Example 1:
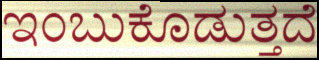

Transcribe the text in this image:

ಇಂಬುಕೊಡುತ್ತದೆ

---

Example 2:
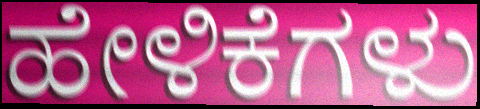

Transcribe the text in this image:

ಹೇಳಿಕೆಗಳು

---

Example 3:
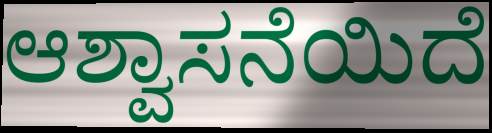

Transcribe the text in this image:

ಆಶ್ವಾಸನೆಯಿದೆ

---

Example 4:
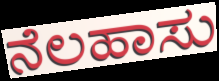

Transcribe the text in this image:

ನೆಲಹಾಸು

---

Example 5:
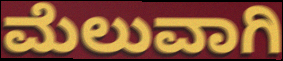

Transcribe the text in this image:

ಮೆಲುವಾಗಿ